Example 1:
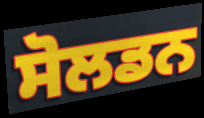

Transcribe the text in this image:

ਸੋਲਡਨ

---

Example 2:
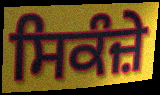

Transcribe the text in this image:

ਸਿਕੰਜ਼ੇ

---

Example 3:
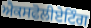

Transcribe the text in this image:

ਐਕਸਫੋਲੀਏਟਿੰਗ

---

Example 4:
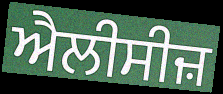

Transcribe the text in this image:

ਐਲੀਸੀਜ਼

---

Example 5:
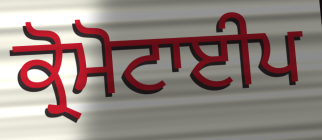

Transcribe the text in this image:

ਕ੍ਰੋਮੋਟਾਈਪ